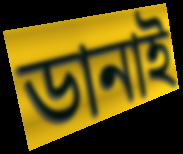
ডানাই